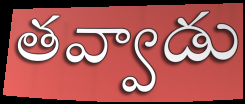
తవ్వాడు